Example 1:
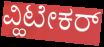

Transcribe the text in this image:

ವ್ಹಿಟೇಕರ್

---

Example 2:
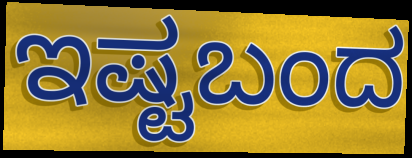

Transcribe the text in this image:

ಇಷ್ಟಬಂದ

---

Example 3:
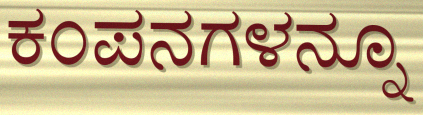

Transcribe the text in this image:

ಕಂಪನಗಳನ್ನೂ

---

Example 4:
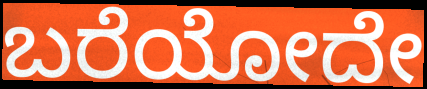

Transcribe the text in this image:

ಬರೆಯೋದೇ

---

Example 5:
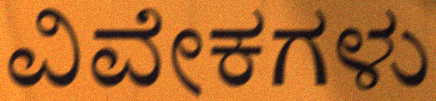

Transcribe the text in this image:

ವಿವೇಕಗಳು